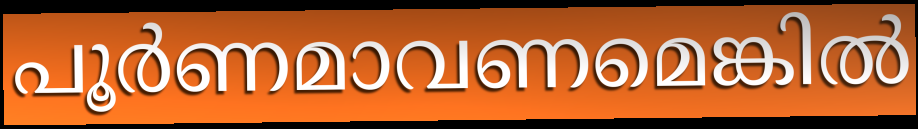
പൂർണമാവണമെങ്കിൽ